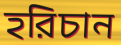
হরিচান